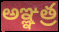
అఞ్ఞత్ర